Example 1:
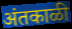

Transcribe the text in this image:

अंतकाळी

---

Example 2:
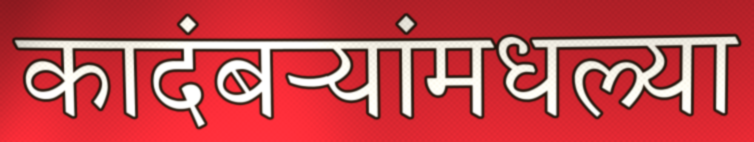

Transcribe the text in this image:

कादंबऱ्यांमधल्या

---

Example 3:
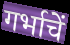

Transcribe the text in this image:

गर्भाचें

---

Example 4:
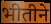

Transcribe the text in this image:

भीतीने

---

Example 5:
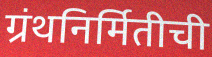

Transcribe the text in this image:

ग्रंथनिर्मितीची